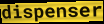
dispenser